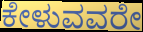
ಕೇಳುವವರೇ